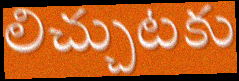
లిచ్చుటకు